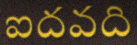
ఐదవది